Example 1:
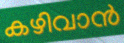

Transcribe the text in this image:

കഴിവാൻ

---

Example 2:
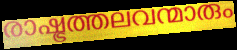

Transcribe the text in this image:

രാഷ്ട്രത്തലവന്മാരും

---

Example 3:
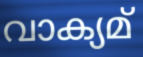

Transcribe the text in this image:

വാക്യമ്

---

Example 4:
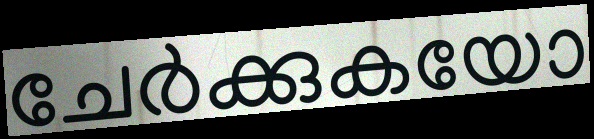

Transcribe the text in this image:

ചേർക്കുകയോ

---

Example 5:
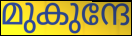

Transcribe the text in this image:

മുകുന്ദേ